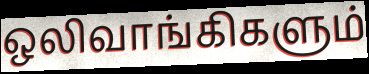
ஒலிவாங்கிகளும்